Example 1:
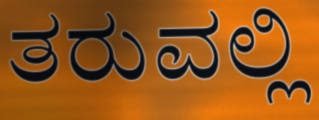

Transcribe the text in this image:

ತರುವಲ್ಲಿ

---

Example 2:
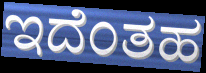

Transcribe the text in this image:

ಇದೆಂತಹ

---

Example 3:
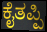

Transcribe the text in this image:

ಕೈತಪ್ಪಿ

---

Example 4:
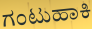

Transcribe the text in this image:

ಗಂಟುಹಾಕಿ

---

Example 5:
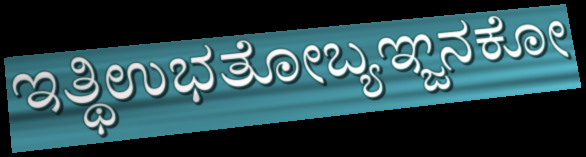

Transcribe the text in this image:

ಇತ್ಥಿಉಭತೋಬ್ಯಞ್ಜನಕೋ